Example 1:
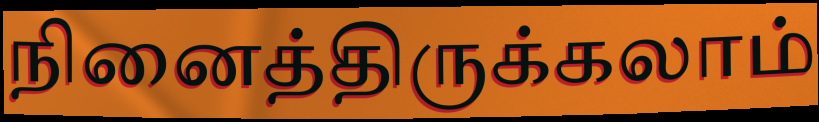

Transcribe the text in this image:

நினைத்திருக்கலாம்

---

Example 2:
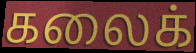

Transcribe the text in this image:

கலைக்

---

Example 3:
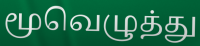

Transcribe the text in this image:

மூவெழுத்து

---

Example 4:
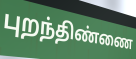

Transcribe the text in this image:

புறந்திண்ணை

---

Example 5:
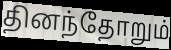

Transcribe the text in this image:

தினந்தோறும்